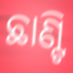
ଛାଣ୍ଟି